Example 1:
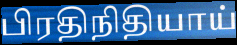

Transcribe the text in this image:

பிரதிநிதியாய்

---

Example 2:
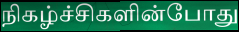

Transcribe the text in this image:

நிகழ்ச்சிகளின்போது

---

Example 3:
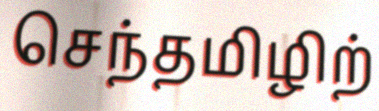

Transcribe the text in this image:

செந்தமிழிற்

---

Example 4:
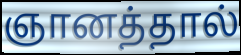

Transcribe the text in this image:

ஞானத்தால்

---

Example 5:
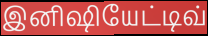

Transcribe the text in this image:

இனிஷியேட்டிவ்